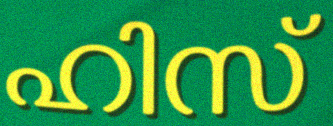
ഹിസ്